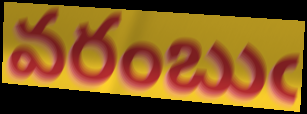
వరంబుఁ